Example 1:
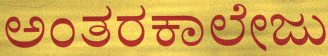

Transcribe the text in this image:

ಅಂತರಕಾಲೇಜು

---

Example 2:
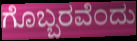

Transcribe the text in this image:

ಗೊಬ್ಬರವೆಂದು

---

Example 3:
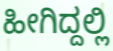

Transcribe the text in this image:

ಹೀಗಿದ್ದಲ್ಲಿ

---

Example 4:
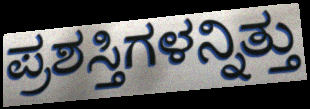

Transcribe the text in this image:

ಪ್ರಶಸ್ತಿಗಳನ್ನಿತ್ತು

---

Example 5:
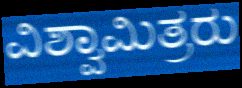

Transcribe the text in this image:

ವಿಶ್ವಾಮಿತ್ರರು